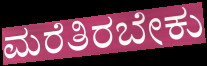
ಮರೆತಿರಬೇಕು